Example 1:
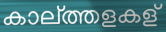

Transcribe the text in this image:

കാല്ത്തളകള്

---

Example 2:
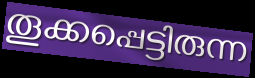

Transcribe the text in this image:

തൂക്കപ്പെട്ടിരുന്ന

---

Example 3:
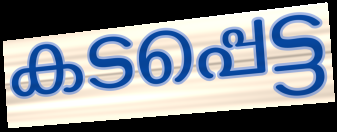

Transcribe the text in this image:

കടപ്പെട്ട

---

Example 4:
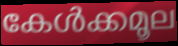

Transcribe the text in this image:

കേൾക്കമൂല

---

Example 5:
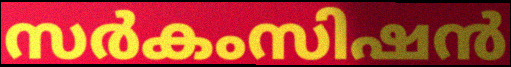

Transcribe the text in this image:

സർകംസിഷൻ